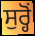
ਸੁਰ੍ਹੋਂ